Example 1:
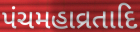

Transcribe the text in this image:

પંચમહાવ્રતાદિ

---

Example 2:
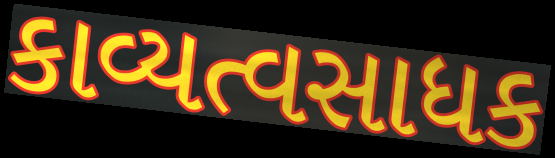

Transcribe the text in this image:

કાવ્યત્વસાધક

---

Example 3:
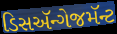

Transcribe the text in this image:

ડિસઍન્ગેજમૅન્ટ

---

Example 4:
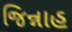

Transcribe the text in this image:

જિન્નાહ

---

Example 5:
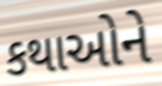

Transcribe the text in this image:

કથાઓને